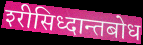
श्रीसिध्दान्तबोध